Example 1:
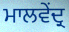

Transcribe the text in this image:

ਮਾਲਵੇਂਦ੍ਰ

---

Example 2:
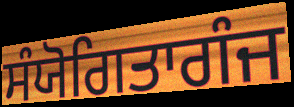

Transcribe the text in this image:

ਸੰਯੋਗਿਤਾਗੰਜ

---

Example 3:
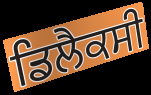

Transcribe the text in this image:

ਡਿਲੈਕਸੀ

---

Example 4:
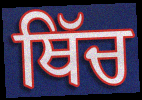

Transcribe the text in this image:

ਥਿੱਚ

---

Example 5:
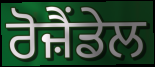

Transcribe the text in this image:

ਰੋਜ਼ੈਂਡੇਲ